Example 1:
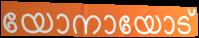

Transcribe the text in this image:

യോനായോട്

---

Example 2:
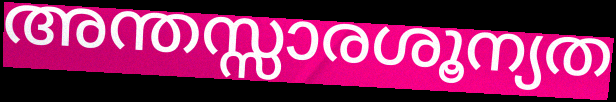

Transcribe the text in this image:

അന്തസ്സാരശൂന്യത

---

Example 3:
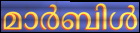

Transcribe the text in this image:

മാർബിൾ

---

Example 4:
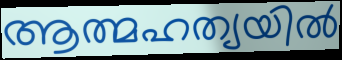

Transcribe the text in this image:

ആത്മഹത്യയിൽ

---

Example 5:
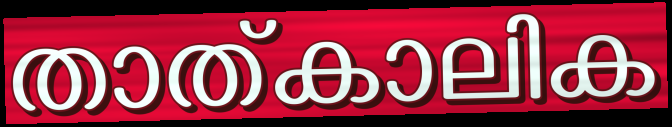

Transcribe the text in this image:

താത്കാലിക